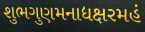
શુભગુણમનાદ્યક્ષરમહં